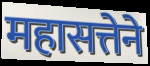
महासत्तेने